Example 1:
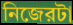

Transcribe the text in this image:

নিজেরটা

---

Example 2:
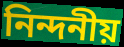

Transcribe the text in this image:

নিন্দনীয়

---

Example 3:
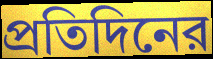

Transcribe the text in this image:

প্রতিদিনের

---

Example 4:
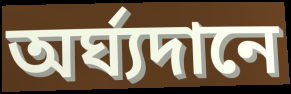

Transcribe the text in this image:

অর্ঘ্যদানে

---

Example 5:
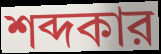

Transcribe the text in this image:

শব্দকার